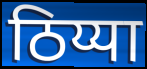
ठिय्या